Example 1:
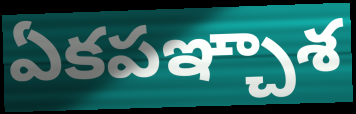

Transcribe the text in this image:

ఏకపఞ్చాశ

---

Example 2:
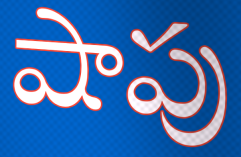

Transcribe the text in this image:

షాపు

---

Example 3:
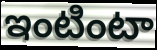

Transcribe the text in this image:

ఇంటింటా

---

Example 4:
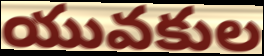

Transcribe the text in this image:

యువకుల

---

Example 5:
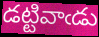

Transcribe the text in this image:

డట్టివాఁడు